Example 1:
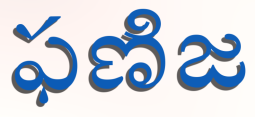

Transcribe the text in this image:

ఫణిజ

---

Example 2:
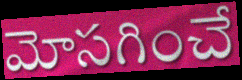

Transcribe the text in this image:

మోసగించే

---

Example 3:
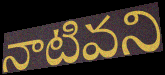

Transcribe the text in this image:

నాటివని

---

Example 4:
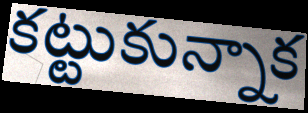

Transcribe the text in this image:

కట్టుకున్నాక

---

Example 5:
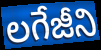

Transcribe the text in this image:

లగేజీని